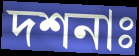
দশনাঃ